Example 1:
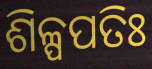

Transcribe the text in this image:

ଶିଳ୍ପପତିଃ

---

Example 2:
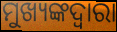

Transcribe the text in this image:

ମୁଖ୍ୟଙ୍କଦ୍ଵାରା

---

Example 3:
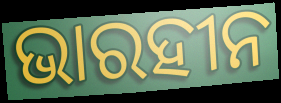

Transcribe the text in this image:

ଭାରହୀନ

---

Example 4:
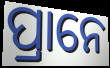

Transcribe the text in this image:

ପ୍ରାନେ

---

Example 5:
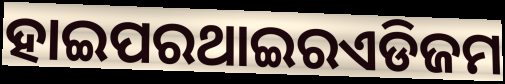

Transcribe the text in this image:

ହାଇପରଥାଇରଏଡିଜମ